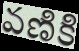
వణికి